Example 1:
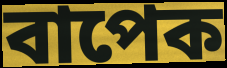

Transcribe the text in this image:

বাপেক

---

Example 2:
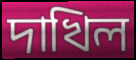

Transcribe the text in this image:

দাখিল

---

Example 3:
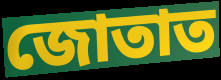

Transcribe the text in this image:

জোতাত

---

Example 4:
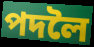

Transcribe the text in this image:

পদলৈ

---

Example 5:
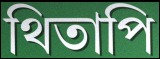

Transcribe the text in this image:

থিতাপি